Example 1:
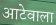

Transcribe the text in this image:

आटेवाला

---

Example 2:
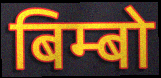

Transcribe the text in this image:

बिम्बो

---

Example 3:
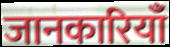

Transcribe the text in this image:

जानकारियाँ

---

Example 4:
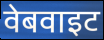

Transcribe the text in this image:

वेबवाइट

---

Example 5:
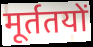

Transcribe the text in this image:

मूर्ततयों